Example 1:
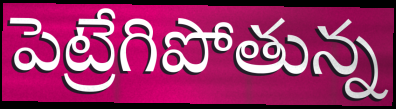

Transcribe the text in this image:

పెట్రేగిపోతున్న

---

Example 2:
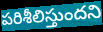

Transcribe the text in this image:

పరిశీలిస్తుందని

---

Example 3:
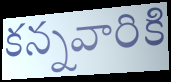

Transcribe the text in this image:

కన్నవారికి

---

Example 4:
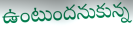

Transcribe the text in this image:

ఉంటుందనుకున్న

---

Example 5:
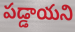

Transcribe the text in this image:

పడ్డాయని